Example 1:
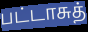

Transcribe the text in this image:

பட்டாசுத்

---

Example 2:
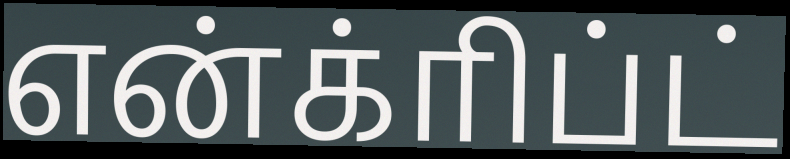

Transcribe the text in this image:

என்க்ரிப்ட்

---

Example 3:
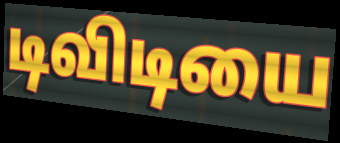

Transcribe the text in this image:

டிவிடியை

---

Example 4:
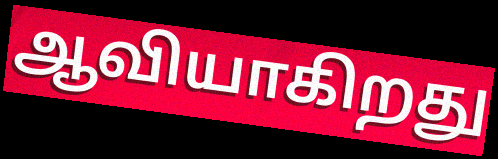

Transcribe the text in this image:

ஆவியாகிறது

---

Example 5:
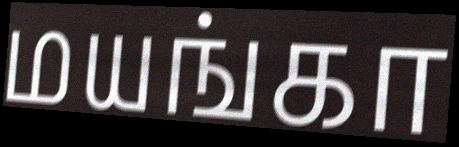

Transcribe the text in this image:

மயங்கா